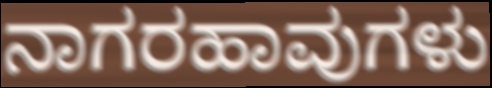
ನಾಗರಹಾವುಗಳು